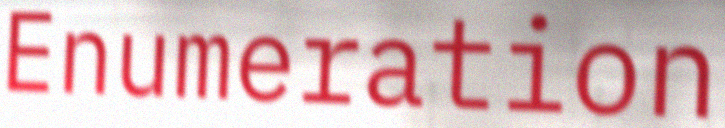
Enumeration